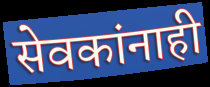
सेवकांनाही